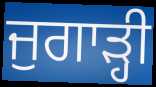
ਜੁਗਾੜ੍ਹੀ